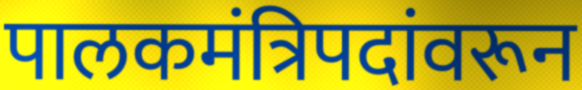
पालकमंत्रिपदांवरून